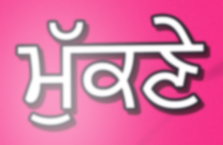
ਮੁੱਕਣੇ